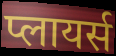
प्लायर्स